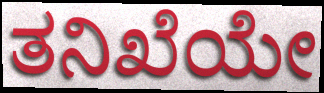
ತನಿಖೆಯೇ